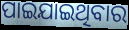
ପାଇଯାଇଥିବାର